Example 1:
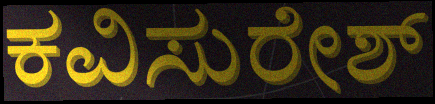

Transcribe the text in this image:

ಕವಿಸುರೇಶ್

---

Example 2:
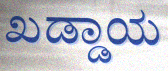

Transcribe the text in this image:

ಖಡ್ಡಾಯ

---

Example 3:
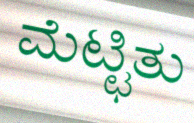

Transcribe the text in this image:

ಮೆಟ್ಟಿತು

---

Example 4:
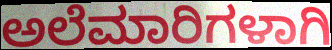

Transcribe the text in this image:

ಅಲೆಮಾರಿಗಳಾಗಿ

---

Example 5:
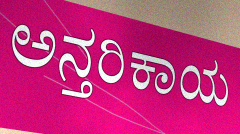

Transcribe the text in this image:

ಅನ್ತರಿಕಾಯ